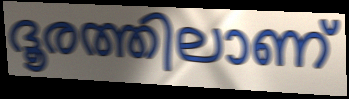
ദൂരത്തിലാണ്